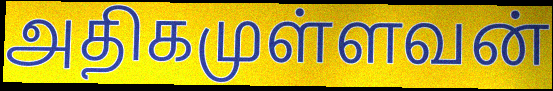
அதிகமுள்ளவன்